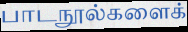
பாடநூல்களைக்